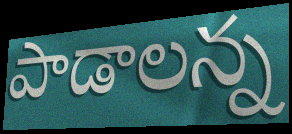
పాడాలన్న